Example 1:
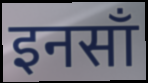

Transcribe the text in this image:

इनसाँ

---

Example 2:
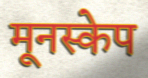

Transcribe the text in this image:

मूनस्केप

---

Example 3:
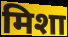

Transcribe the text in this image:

मिशा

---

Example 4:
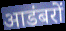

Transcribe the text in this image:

आडंबरों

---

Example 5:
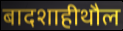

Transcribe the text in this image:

बादशाहीथौल